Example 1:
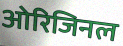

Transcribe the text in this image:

ओरिजिनल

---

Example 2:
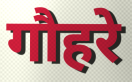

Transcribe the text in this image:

गौहरे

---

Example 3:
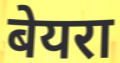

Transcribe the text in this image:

बेयरा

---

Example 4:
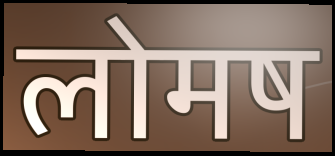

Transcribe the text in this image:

लोमष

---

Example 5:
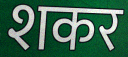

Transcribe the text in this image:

शकर